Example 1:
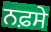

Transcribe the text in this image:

ਨਫ਼ਸੇ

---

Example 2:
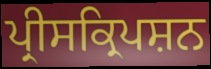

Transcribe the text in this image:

ਪ੍ਰੀਸਕ੍ਰਿਪਸ਼ਨ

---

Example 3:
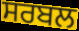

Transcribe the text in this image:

ਸਰਬਲ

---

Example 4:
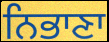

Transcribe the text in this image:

ਨਿਭਾਣਾ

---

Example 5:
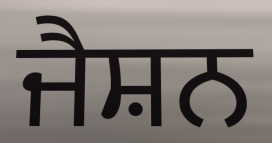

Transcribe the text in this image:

ਜੈਸ਼ਨ